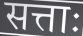
सत्ताः